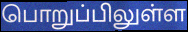
பொறுப்பிலுள்ள